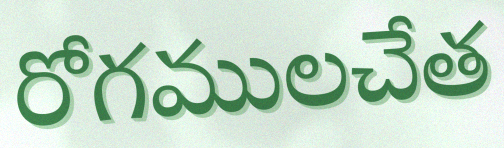
రోగములచేత